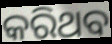
କରିଥବ